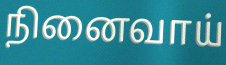
நினைவாய்